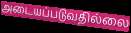
அடையப்படுவதில்லை